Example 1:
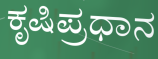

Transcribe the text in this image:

ಕೃಷಿಪ್ರಧಾನ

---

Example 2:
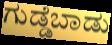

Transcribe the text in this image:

ಗುಡ್ಡೆಬಾಡು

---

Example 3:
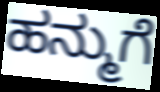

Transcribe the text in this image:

ಹನ್ಮುಗೆ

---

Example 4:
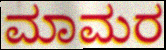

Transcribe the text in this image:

ಮಾಮರ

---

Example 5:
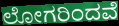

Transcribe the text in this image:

ಲೋಗರಿಂದವೆ